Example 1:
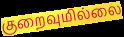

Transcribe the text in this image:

குறைவுமில்லை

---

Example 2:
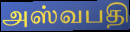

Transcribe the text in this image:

அஸ்வபதி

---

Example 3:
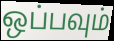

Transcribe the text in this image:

ஒப்பவும்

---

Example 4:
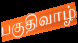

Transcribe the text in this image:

பகுதிவாழ்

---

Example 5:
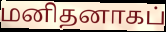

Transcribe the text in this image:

மனிதனாகப்